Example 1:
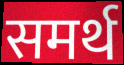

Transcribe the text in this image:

समर्थ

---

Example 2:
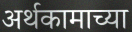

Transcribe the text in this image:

अर्थकामाच्या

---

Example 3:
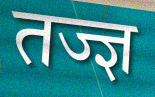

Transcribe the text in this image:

तज्ज्ञ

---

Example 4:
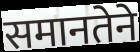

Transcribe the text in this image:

समानतेने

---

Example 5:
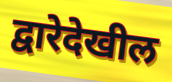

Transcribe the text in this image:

द्वारेदेखील